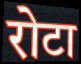
रोटा